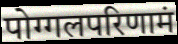
पोग्गलपरिणामं